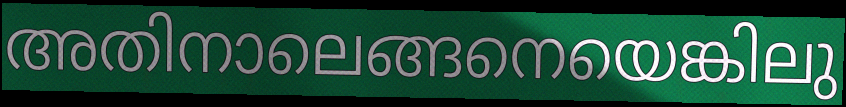
അതിനാലെങ്ങനെയെങ്കിലു